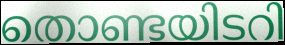
തൊണ്ടയിടറി